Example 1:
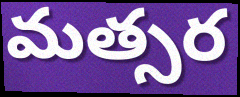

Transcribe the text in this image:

మత్సర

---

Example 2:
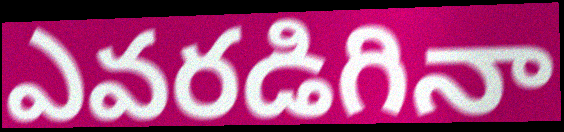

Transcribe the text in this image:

ఎవరడిగినా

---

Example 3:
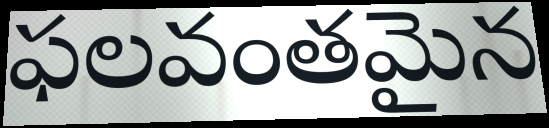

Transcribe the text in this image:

ఫలవంతమైన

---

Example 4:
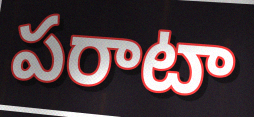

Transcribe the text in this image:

పరాటా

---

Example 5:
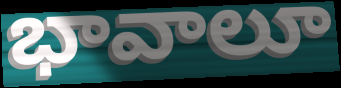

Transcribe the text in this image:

భావాలూ